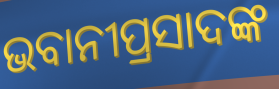
ଭବାନୀପ୍ରସାଦଙ୍କ